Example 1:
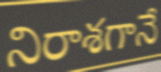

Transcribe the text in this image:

నిరాశగానే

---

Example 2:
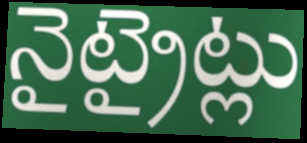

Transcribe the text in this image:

నైట్రైట్లు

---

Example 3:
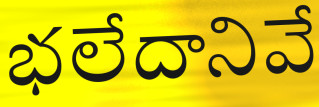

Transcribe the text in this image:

భలేదానివే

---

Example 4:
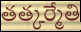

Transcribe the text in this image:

తత్కర్మేతి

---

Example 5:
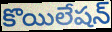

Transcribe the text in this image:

కొయిలేషన్